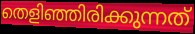
തെളിഞ്ഞിരിക്കുന്നത്